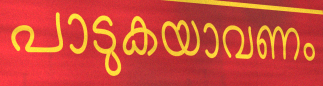
പാടുകയാവണം